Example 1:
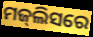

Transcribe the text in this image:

ମଜ୍‌ଲିସରେ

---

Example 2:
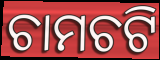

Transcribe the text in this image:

ଚାମଚଟି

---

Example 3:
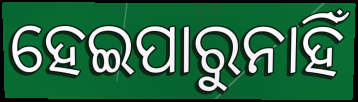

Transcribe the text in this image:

ହେଇପାରୁନାହିଁ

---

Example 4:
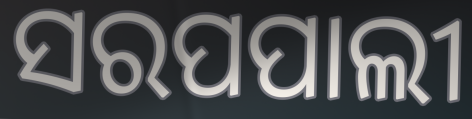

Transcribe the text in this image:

ସରପପାଲୀ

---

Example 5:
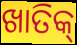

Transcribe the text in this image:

ଖାତିକ୍